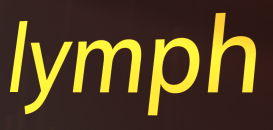
lymph